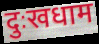
दुःखधाम